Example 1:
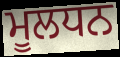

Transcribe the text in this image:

ਮੂਲਧਨ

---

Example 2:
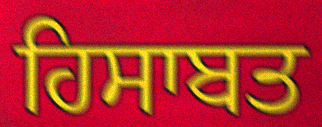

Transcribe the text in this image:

ਹਿਸਾਬਤ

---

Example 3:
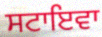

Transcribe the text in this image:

ਸਟਾਇਵਾ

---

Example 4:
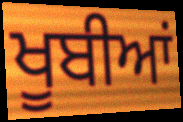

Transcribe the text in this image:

ਖੂਬੀਆਂ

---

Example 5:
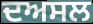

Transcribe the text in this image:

ਦਅਸਲ